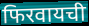
फिरवायची